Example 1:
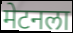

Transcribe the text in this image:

मेटनला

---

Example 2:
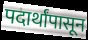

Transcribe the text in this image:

पदार्थांपासून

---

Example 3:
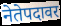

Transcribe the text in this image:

नेतेपदावर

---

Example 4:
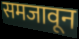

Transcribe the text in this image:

समजावून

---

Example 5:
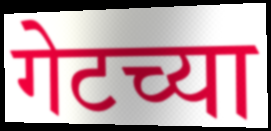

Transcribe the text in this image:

गेटच्या